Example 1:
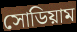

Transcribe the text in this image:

সোডিয়াম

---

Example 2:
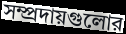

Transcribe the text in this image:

সম্প্রদায়গুলোর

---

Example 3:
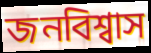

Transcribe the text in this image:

জনবিশ্বাস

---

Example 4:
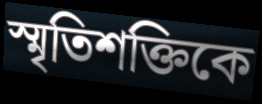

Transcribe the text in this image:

স্মৃতিশক্তিকে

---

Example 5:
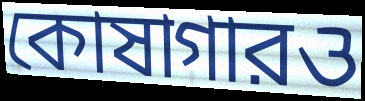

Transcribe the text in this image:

কোষাগারও